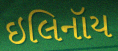
ઇલિનૉય